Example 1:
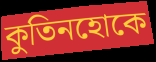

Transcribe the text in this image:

কুতিনহোকে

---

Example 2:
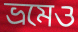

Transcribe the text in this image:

ভ্রমেও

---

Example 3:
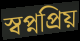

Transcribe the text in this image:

স্বপ্নপ্রিয়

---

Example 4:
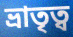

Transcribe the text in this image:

ভ্রাতৃত্ব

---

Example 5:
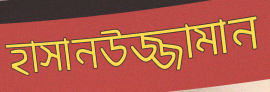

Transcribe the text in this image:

হাসানউজ্জামান